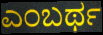
ಎಂಬರ್ಥ